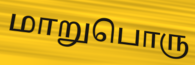
மாறுபொரு